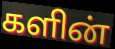
களின்